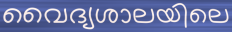
വൈദ്യശാലയിലെ